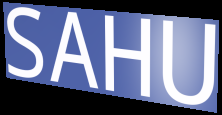
SAHU